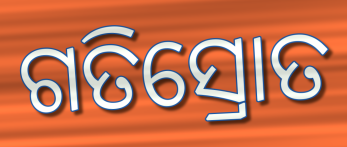
ଗତିସ୍ରୋତ